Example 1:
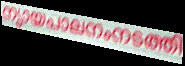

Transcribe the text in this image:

ന്യായപാലനംനടത്തി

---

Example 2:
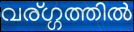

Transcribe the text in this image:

വര്ഗ്ഗത്തിൽ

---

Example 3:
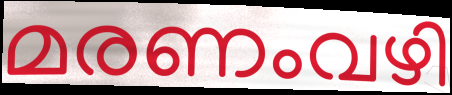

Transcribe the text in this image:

മരണംവഴി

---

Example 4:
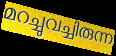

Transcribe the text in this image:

മറച്ചുവച്ചിരുന്ന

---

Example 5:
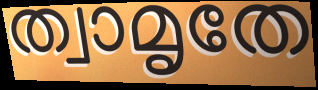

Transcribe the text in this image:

ത്വാമൃതേ